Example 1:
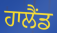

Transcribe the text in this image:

ਹਾਲੈਂਡ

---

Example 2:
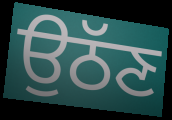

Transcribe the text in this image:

ਉਠੱਣ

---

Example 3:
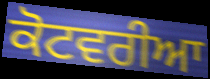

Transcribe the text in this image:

ਕੋਟਵਰੀਆ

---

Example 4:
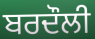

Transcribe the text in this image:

ਬਰਦੌਲੀ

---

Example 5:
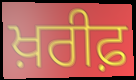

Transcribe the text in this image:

ਖ਼ਰੀਫ਼